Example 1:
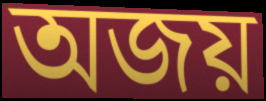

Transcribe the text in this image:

অজয়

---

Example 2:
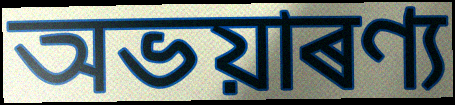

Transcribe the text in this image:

অভয়াৰণ্য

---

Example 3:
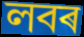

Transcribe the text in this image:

লবৰ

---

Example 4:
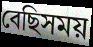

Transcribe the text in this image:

বেছিসময়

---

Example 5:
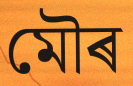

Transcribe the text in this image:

মৌৰ